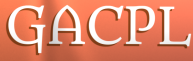
GACPL